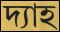
দ্যাহ